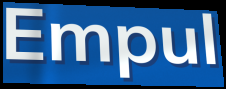
Empul